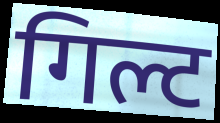
गिल्ट